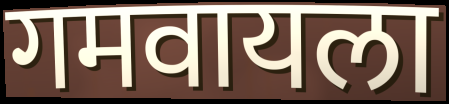
गमवायला